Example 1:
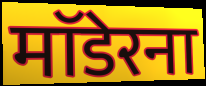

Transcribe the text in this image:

मॉडेरना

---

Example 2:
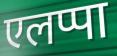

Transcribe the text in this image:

एलप्पा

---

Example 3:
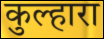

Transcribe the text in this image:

कुल्हारा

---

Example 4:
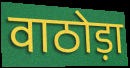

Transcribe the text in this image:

वाठोड़ा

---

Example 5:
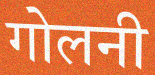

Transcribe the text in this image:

गोलनी